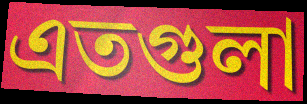
এতগুলা